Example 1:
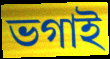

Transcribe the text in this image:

ভগাই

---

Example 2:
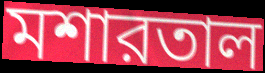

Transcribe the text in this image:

মশারতাল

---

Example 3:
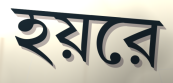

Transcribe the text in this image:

হয়রে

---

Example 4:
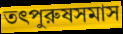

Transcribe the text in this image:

তৎপুরুষসমাস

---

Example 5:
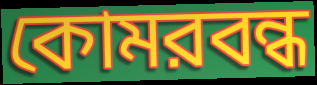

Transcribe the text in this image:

কোমরবন্ধ